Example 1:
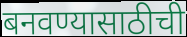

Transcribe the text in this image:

बनवण्यासाठीची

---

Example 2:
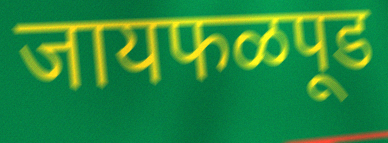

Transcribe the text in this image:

जायफळपूड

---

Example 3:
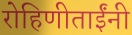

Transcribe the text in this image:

रोहिणीताईंनी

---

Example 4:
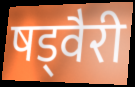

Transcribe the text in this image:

षड्वैरी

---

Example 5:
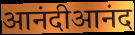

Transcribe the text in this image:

आनंदीआनंद